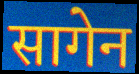
सागेन